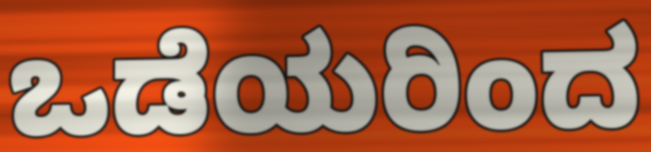
ಒಡೆಯರಿಂದ